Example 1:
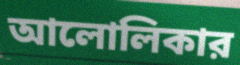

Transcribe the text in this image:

আলোলিকার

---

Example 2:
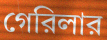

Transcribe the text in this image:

গেরিলার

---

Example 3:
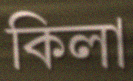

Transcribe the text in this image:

কিলা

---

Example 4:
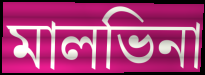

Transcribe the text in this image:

মালভিনা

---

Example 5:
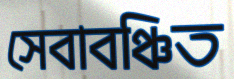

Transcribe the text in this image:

সেবাবঞ্চিত